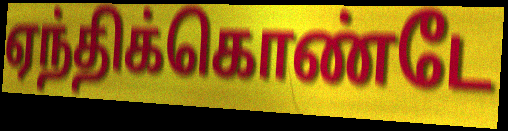
ஏந்திக்கொண்டே